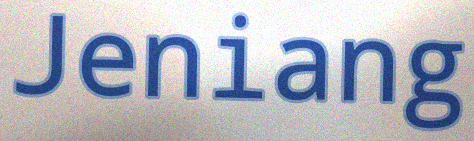
Jeniang